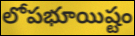
లోపభూయిష్టం